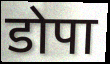
डोपा